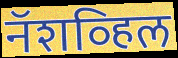
नॅशव्हिल